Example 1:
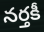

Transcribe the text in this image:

నర్తకీ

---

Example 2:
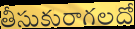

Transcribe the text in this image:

తీసుకురాగలదో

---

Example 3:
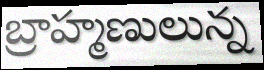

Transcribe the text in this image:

బ్రాహ్మణులున్న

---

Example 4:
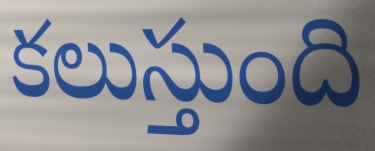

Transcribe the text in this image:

కలుస్తుంది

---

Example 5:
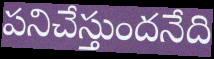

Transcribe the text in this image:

పనిచేస్తుందనేది